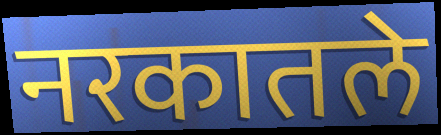
नरकातले